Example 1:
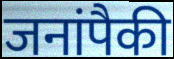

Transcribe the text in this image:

जनांपैकी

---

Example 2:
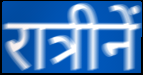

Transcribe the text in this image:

रात्रीनें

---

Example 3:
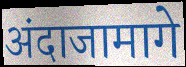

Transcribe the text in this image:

अंदाजामागे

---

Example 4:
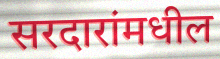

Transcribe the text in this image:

सरदारांमधील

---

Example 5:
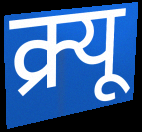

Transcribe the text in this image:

क्र्यू